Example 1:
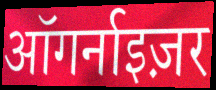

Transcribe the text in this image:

ऑगर्नाइज़र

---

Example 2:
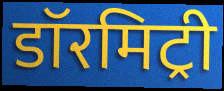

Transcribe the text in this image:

डॉरमिट्री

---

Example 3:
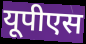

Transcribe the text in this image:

यूपीएस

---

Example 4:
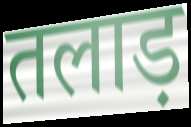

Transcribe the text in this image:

तलाड़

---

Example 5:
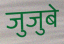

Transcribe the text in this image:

जुजुबे